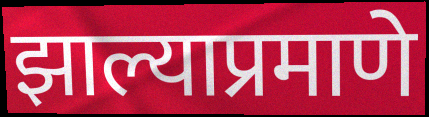
झाल्याप्रमाणे